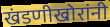
खंडणीखोरांनी